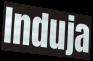
Induja